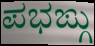
ಪಭಙ್ಗು